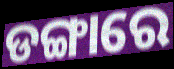
ଡଙ୍ଗାରେ